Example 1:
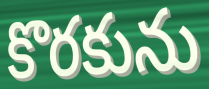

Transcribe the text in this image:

కొరకును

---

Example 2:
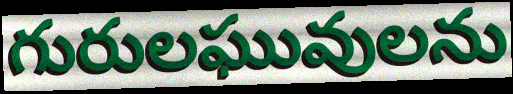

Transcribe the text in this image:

గురులఘువులను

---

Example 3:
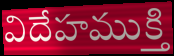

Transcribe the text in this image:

విదేహముక్తి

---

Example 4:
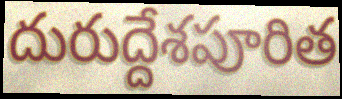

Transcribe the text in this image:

దురుద్దేశపూరిత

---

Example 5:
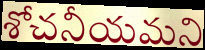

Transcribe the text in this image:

శోచనీయమని